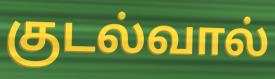
குடல்வால்